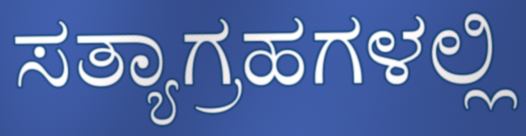
ಸತ್ಯಾಗ್ರಹಗಳಲ್ಲಿ